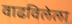
वाढविलेला